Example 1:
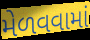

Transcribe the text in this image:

મેળવવામાં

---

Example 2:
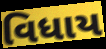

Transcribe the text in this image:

વિધાય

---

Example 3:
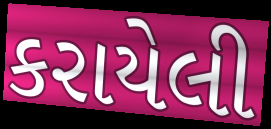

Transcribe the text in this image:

કરાયેલી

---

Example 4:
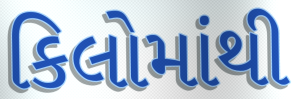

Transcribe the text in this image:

કિલોમાંથી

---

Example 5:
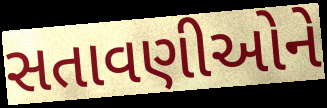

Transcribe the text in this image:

સતાવણીઓને